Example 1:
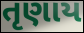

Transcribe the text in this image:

તૃણાય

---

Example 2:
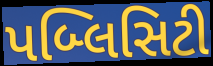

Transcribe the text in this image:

પબ્લિસિટી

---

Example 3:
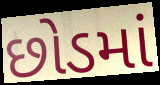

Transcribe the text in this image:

છોડમાં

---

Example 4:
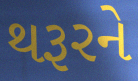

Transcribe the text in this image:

થરૂરને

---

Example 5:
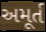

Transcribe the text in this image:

અમૂર્ત